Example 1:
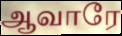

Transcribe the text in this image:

ஆவாரே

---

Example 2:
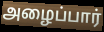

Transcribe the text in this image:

அழைப்பார்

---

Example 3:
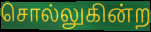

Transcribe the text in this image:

சொல்லுகின்ற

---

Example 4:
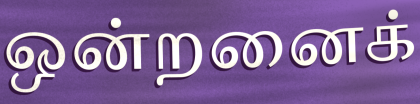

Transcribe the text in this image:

ஒன்றனைக்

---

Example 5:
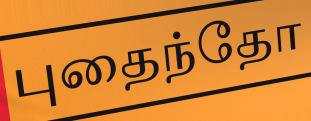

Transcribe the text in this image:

புதைந்தோ